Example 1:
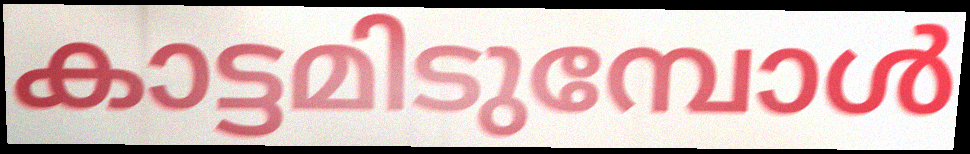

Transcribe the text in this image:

കാട്ടമിടുമ്പോൾ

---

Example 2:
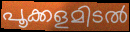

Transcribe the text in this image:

പൂക്കളമിടൽ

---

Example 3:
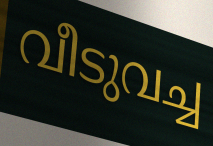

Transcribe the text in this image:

വീടുവച്ച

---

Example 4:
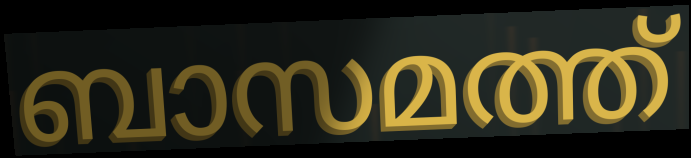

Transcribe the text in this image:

ബാസമത്ത്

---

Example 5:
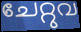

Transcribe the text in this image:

ചേറ്റുവ